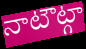
నాటౌట్గా